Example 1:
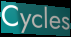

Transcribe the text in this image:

Cycles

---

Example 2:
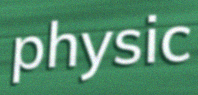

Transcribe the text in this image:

physic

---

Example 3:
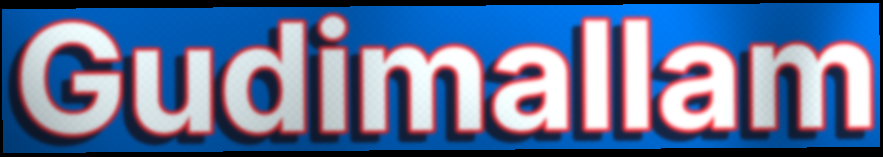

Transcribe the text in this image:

Gudimallam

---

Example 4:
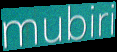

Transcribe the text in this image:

mubiri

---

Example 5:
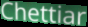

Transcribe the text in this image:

Chettiar